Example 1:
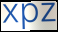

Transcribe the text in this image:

xpz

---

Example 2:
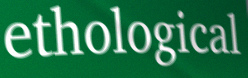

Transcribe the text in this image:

ethological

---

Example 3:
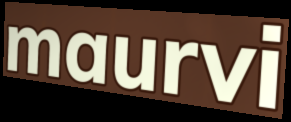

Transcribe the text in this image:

maurvi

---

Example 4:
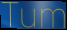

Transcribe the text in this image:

Tum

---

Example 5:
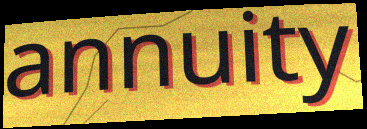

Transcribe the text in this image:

annuity